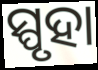
ସ୍ପୃହା